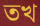
তখ